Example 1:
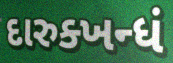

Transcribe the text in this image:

દારુક્ખન્ધં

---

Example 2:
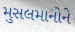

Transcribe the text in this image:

મુસલમાનોને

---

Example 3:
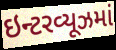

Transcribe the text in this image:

ઇન્ટરવ્યૂઝમાં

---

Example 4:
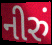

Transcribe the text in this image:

નીરું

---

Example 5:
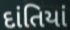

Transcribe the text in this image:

દાંતિયાં